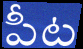
పీట